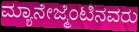
ಮ್ಯಾನೇಜ್ಮೆಂಟಿನವರು